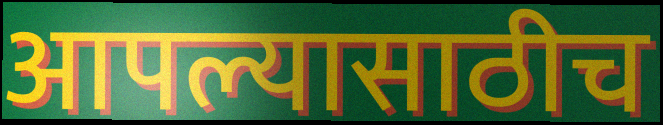
आपल्यासाठीच